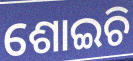
ଶୋଇଚି